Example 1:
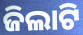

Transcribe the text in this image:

ଜିଲାଟି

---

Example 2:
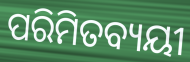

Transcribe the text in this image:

ପରିମିତବ୍ୟୟୀ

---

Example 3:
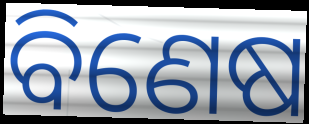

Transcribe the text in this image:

ବିଣେଷ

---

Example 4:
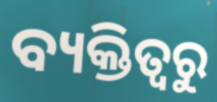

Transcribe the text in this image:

ବ୍ୟକ୍ତିତ୍ୱରୁ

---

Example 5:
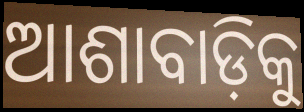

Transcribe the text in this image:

ଆଶାବାଡ଼ିକୁ